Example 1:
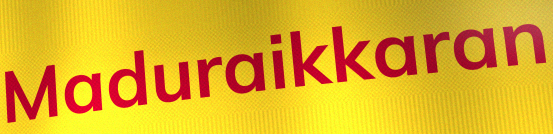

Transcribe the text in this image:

Maduraikkaran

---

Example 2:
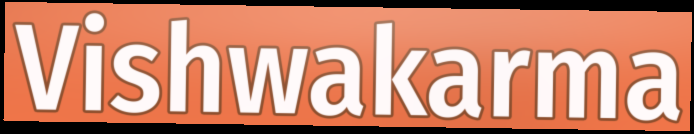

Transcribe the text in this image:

Vishwakarma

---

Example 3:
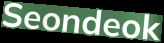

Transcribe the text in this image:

Seondeok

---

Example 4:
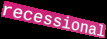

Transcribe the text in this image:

recessional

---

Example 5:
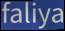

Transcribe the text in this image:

faliya